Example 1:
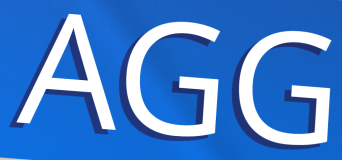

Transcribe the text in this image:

AGG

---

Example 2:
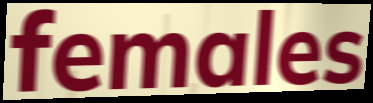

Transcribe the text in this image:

females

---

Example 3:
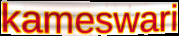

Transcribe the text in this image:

kameswari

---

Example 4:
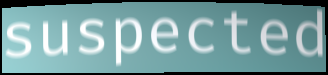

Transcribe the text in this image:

suspected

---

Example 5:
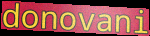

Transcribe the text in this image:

donovani